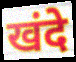
खंदे